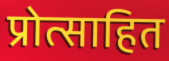
प्रोत्साहित